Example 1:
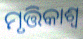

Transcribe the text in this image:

ମୃତ୍ତିକାଶ୍ୱ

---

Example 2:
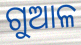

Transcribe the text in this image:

ଗୁଆଳ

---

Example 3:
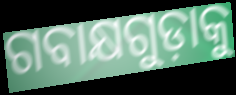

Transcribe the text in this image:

ଗବାକ୍ଷଗୁଡ଼ାକୁ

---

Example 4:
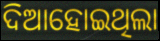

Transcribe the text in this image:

ଦିଆହୋଇଥିଲା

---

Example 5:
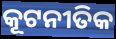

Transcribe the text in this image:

କୂଟନୀତିକ